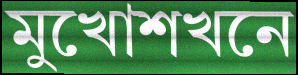
মুখোশখনে